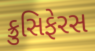
ક્રુસિફેરસ